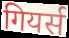
गियर्स